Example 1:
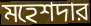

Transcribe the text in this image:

মহেশদার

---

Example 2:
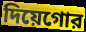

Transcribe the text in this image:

দিয়েগোর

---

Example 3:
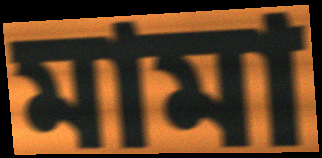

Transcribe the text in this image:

মামা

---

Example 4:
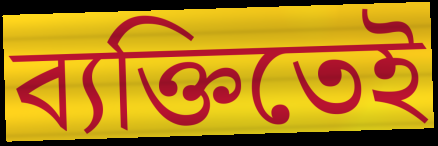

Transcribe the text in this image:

ব্যক্তিতেই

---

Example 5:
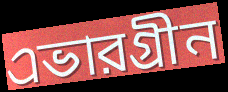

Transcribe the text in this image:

এভারগ্রীন